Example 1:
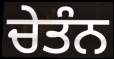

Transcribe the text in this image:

ਚੇਤੰਨ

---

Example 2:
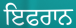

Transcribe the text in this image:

ਇਫਰਾਨ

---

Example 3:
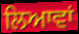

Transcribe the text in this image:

ਲਿਆਵਾਂ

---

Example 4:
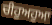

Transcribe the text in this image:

ਚੀਹੁਅਹੁਆ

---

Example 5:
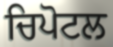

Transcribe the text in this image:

ਚਿਪੋਟਲ